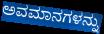
ಅವಮಾನಗಳನ್ನು